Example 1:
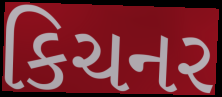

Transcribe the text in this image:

કિચનર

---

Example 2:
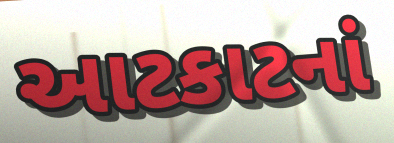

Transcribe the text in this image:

આટકાટનાં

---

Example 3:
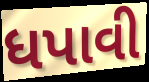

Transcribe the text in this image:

ધપાવી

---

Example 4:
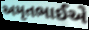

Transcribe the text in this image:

અમૃતભાઈએ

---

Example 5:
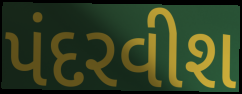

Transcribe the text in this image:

પંદરવીશ